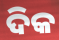
ଦିକ